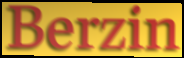
Berzin